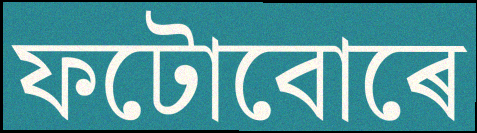
ফটোবোৰে